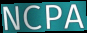
NCPA